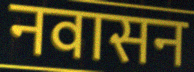
नवासन